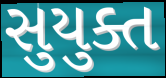
સુયુક્ત